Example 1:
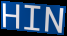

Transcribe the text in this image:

HIN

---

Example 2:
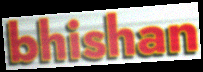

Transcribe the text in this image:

bhishan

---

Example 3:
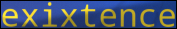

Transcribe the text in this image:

exixtence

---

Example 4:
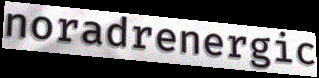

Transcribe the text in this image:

noradrenergic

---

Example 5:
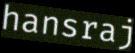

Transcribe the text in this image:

hansraj